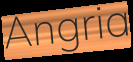
Angria